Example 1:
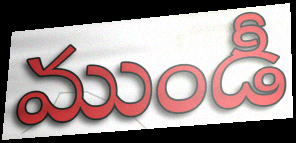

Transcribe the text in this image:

ముండీ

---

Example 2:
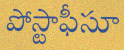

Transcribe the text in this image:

పోస్టాఫీసూ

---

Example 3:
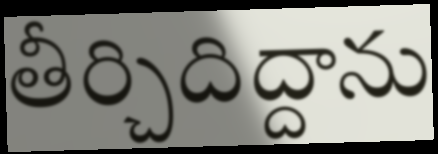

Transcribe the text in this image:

తీర్చిదిద్దాను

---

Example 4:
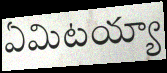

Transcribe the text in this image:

ఏమిటయ్యా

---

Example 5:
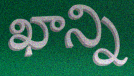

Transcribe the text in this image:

ఖాన్ని